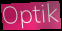
Optik